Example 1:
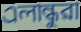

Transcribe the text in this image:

এলান্ধুৱা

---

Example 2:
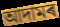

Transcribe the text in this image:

আদামৰ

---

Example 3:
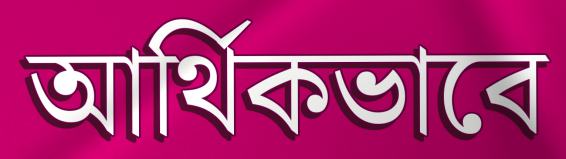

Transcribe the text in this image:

আৰ্থিকভাবে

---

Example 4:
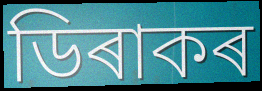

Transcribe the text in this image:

ডিৰাকৰ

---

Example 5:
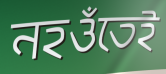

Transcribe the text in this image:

নহওঁতেই